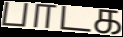
பாடக